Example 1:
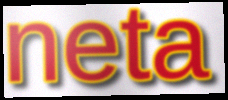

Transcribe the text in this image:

neta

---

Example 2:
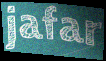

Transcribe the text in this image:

jafar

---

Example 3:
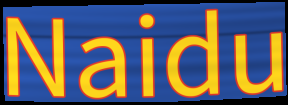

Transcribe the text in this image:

Naidu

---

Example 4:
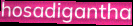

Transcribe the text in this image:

hosadigantha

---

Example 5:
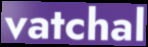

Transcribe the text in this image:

vatchal